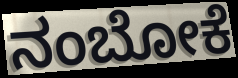
ನಂಬೋಕೆ